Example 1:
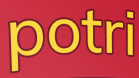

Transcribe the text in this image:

potri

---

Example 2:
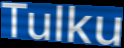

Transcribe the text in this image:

Tulku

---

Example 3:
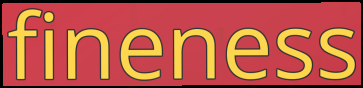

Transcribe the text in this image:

fineness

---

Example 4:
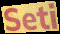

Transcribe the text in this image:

Seti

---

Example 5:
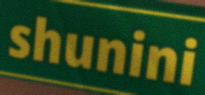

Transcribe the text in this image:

shunini